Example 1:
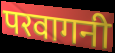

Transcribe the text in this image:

परवागनी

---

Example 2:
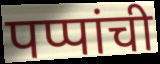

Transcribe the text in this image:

पप्पांची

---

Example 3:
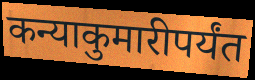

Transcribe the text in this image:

कन्याकुमारीपर्यंत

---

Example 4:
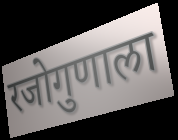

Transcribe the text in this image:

रजोगुणाला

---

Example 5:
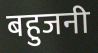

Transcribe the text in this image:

बहुजनी